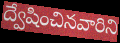
ద్వేషించినవారిని